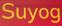
Suyog